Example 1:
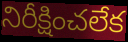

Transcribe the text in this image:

నిరీక్షించలేక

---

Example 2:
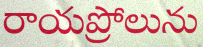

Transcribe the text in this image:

రాయప్రోలును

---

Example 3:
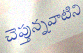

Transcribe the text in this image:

చెప్తున్నవాటిని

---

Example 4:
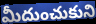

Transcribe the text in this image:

మీదుంచుకుని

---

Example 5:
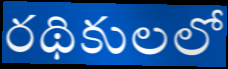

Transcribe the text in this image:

రథికులలో